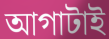
আগাটাই